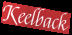
Keelback